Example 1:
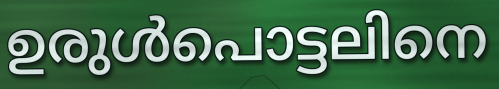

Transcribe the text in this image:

ഉരുൾപൊട്ടലിനെ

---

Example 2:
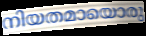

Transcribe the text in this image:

നിയതമായൊരു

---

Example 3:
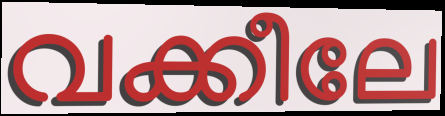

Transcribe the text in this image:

വക്കീലേ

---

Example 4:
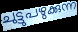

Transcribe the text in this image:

ചുട്ടുപഴുക്കുന്ന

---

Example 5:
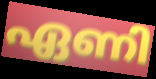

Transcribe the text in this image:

ഏണി